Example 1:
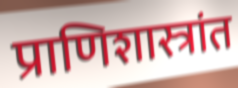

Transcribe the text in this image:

प्राणिशास्त्रांत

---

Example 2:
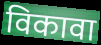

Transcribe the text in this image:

विकावा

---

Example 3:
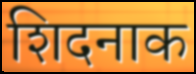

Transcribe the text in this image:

शिदनाक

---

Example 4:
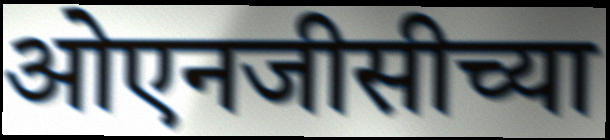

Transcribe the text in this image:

ओएनजीसीच्या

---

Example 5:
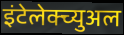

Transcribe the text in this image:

इंटेलेक्च्युअल